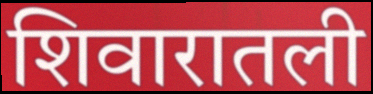
शिवारातली